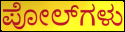
ಪೋಲ್‌ಗಳು